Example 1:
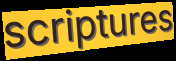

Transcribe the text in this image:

scriptures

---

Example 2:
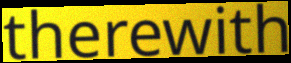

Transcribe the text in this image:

therewith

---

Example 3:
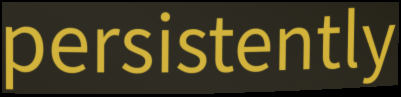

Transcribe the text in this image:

persistently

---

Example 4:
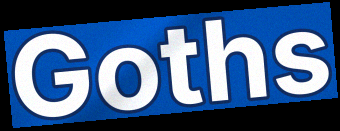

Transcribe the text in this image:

Goths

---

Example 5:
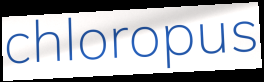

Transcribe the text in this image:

chloropus